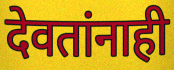
देवतांनाही